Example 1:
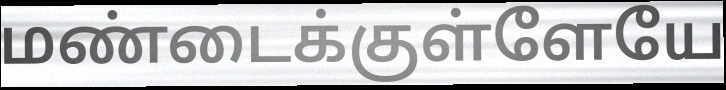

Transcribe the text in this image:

மண்டைக்குள்ளேயே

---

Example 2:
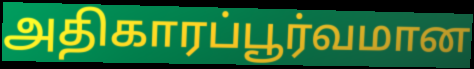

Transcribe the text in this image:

அதிகாரப்பூர்வமான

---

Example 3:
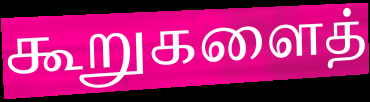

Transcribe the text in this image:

கூறுகளைத்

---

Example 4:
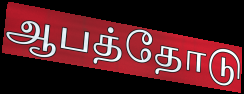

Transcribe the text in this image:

ஆபத்தோடு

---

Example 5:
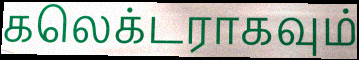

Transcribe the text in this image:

கலெக்டராகவும்